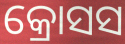
କ୍ରୋସସ